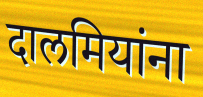
दालमियांना